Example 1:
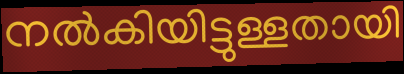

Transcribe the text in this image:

നൽകിയിട്ടുള്ളതായി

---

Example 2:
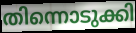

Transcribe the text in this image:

തിന്നൊടുക്കി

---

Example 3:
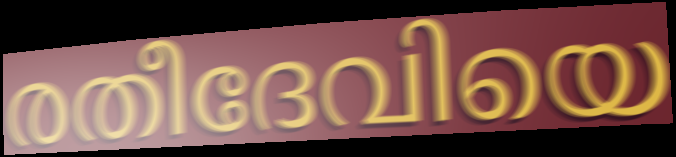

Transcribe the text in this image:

രതീദേവിയെ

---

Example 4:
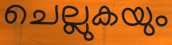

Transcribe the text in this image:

ചെല്ലുകയും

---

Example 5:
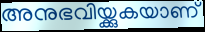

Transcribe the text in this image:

അനുഭവിയ്ക്കുകയാണ്